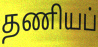
தணியப்